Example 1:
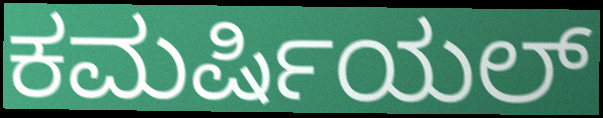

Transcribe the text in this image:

ಕಮರ್ಷಿಯಲ್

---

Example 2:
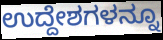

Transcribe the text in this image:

ಉದ್ದೇಶಗಳನ್ನೂ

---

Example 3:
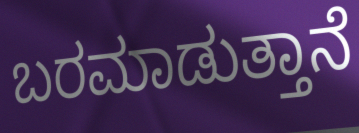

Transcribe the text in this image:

ಬರಮಾಡುತ್ತಾನೆ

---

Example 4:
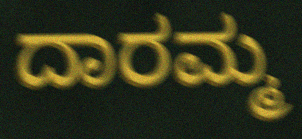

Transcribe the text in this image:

ದಾರಮ್ಮ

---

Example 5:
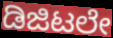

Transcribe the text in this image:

ಡಿಜಿಟಲೇ